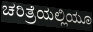
ಚರಿತ್ರೆಯಲ್ಲಿಯೂ